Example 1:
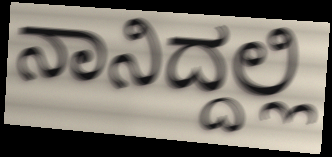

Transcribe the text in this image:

ನಾನಿದ್ದಲ್ಲಿ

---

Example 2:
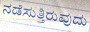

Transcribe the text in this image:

ನಡೆಸುತ್ತಿರುವುದು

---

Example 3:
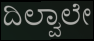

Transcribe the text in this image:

ದಿಲ್ವಾಲೇ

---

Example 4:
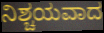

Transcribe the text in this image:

ನಿಶ್ಚಯವಾದ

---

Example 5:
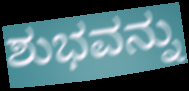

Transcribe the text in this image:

ಶುಭವನ್ನು